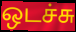
ஒடச்சு